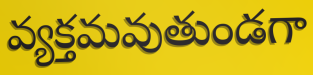
వ్యక్తమవుతుండగా